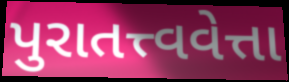
પુરાતત્ત્વવેત્તા